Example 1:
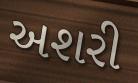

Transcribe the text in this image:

અશરી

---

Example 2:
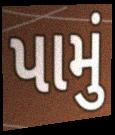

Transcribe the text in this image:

પામું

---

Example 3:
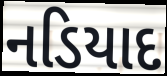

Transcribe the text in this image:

નડિયાદ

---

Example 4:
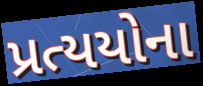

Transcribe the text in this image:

પ્રત્યયોના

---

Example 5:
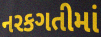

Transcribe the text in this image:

નરકગતીમાં